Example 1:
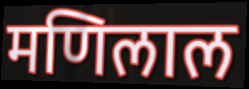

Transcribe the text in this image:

मणिलाल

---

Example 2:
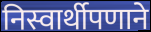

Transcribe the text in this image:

निस्वार्थीपणाने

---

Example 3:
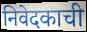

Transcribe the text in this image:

निवेदकाची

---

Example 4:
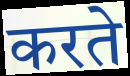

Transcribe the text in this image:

करते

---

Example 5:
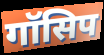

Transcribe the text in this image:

गॉसिप